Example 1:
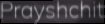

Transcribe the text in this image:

Prayshchit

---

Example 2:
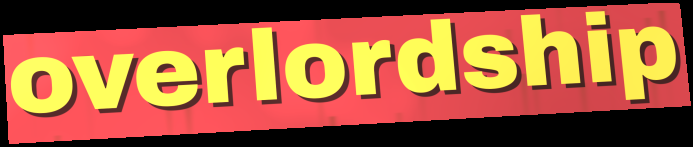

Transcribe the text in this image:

overlordship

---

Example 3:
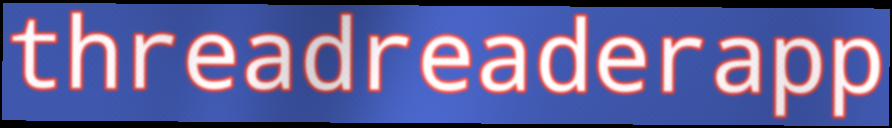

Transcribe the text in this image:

threadreaderapp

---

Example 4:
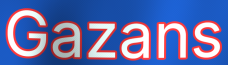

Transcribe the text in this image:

Gazans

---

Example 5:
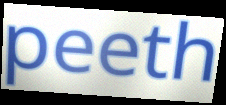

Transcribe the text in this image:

peeth